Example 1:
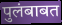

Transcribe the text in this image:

पुलंबाबत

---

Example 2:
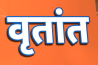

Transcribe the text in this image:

वृतांत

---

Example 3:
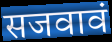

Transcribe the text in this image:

सजवावं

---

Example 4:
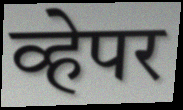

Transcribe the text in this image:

व्हेपर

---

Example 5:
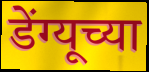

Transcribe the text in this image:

डेंग्यूच्या